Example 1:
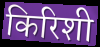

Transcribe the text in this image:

किरिशी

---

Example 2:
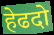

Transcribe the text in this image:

हेढदो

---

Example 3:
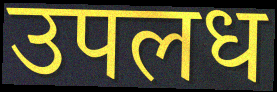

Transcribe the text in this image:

उपलध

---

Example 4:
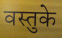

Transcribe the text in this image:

वस्तुके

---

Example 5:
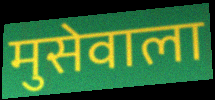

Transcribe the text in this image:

मुसेवाला